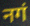
नगं